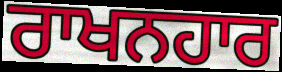
ਰਾਖਨਹਾਰ